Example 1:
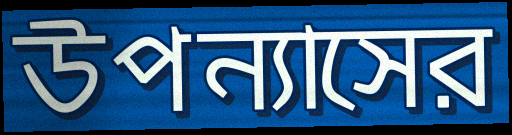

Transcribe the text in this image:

উপন্যাসের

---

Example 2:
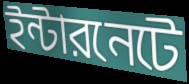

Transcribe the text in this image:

ইন্টারনেটে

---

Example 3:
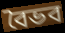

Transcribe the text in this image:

বৈভব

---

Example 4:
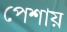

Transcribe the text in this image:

পেশায়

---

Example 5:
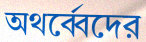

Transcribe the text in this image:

অথর্ব্বেদের